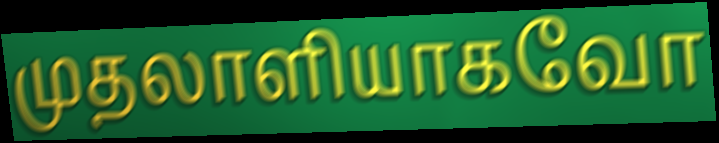
முதலாளியாகவோ